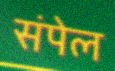
संपेल